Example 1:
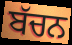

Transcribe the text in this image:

ਬੱਚਨ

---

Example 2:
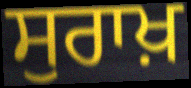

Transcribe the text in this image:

ਸੁਰਾਖ਼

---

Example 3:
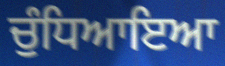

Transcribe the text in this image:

ਚੁੰਧਿਆਇਆ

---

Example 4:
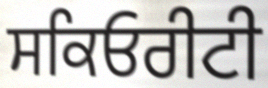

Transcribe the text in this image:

ਸਕਿਓਰੀਟੀ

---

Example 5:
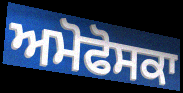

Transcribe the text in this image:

ਅਮੋਫੋਸਕਾ